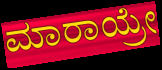
ಮಾರಾಯ್ರೇ